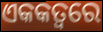
ଏକକତ୍ୱରେ